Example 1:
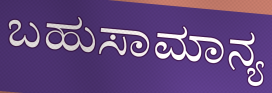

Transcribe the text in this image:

ಬಹುಸಾಮಾನ್ಯ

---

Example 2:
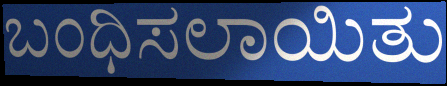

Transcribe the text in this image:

ಬಂಧಿಸಲಾಯಿತು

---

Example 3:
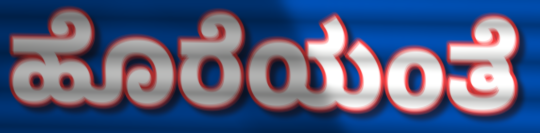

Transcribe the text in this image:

ಹೊರೆಯಂತೆ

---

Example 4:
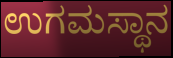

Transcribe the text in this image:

ಉಗಮಸ್ಥಾನ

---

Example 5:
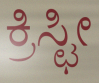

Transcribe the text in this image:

ಕ್ರಿಸ್ಟೀ